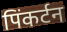
पिंकर्टन